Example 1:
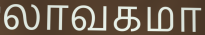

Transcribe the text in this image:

லாவகமா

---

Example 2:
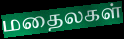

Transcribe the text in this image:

மதைலகள்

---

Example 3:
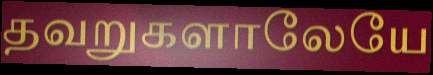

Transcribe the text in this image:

தவறுகளாலேயே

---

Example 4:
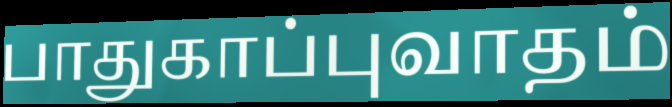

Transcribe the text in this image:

பாதுகாப்புவாதம்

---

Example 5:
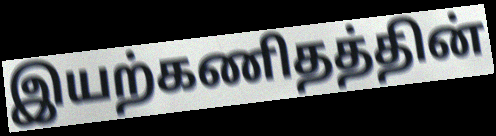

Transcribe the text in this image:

இயற்கணிதத்தின்